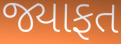
જ્યાફત